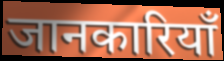
जानकारियाँ